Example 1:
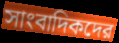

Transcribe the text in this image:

সাংবাদিকদের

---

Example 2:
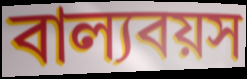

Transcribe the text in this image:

বাল্যবয়স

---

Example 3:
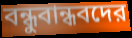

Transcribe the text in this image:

বন্ধুবান্ধবদের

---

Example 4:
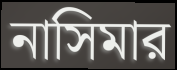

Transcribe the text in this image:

নাসিমার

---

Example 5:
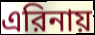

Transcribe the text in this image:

এরিনায়